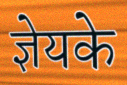
ज्ञेयके